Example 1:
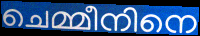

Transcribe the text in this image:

ചെമ്മീനിനെ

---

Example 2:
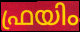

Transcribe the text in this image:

ഫ്രയിം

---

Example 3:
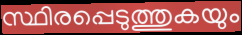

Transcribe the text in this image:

സ്ഥിരപ്പെടുത്തുകയും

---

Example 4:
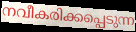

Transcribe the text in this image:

നവീകരിക്കപ്പെടുന്ന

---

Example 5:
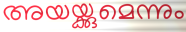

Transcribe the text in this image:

അയയ്ക്കുമെന്നും